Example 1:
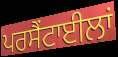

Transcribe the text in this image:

ਪਰਸੈਂਟਾਈਲਾਂ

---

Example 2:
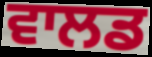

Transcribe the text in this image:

ਵਾਲਡ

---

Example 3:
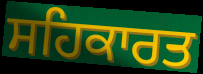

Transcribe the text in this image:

ਸਹਿਕਾਰਤ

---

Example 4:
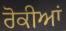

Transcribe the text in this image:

ਰੋਕੀਆਂ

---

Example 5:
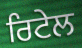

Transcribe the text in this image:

ਰਿਟੇਲ